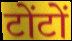
टोंटों